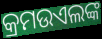
କ୍ରମଉଏଲଙ୍କ